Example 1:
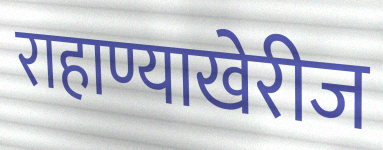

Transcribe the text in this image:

राहाण्याखेरीज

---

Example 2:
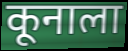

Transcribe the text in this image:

कूनाला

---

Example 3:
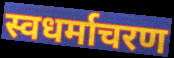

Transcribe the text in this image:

स्वधर्माचरण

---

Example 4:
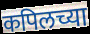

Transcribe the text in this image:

कपिलच्या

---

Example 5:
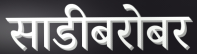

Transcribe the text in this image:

साडीबरोबर